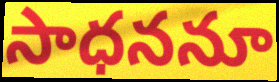
సాధననూ